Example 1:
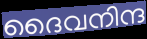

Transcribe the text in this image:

ദൈവനിന്ദ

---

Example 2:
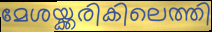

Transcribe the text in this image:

മേശയ്ക്കരികിലെത്തി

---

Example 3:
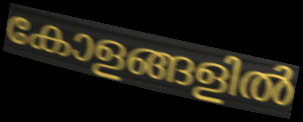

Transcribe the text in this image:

കോളങ്ങളിൽ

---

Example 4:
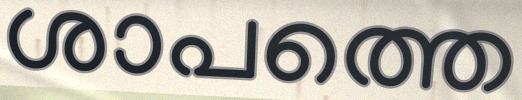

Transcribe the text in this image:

ശാപത്തെ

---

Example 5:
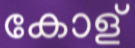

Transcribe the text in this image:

കോള്